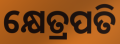
କ୍ଷେତ୍ରପତି